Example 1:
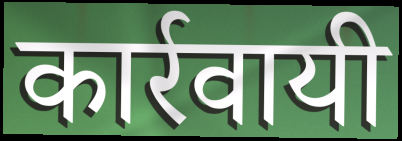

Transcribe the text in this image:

कार्रवायी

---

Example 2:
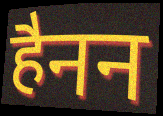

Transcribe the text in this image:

हैनन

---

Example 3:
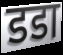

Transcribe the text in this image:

डडा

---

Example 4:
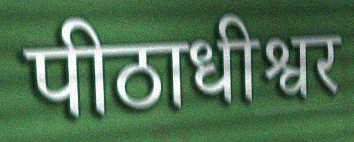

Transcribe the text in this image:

पीठाधीश्वर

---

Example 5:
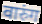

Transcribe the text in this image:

वारुंग